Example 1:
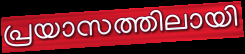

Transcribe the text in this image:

പ്രയാസത്തിലായി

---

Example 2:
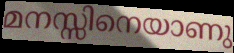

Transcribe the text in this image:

മനസ്സിനെയാണു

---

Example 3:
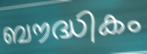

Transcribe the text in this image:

ബൗദ്ധികം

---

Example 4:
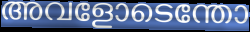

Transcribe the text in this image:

അവളോടെന്തോ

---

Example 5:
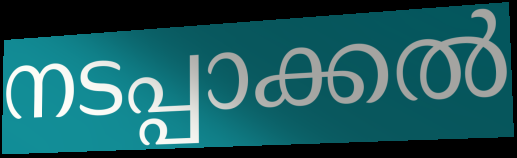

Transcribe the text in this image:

നടപ്പാക്കൽ